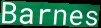
Barnes